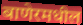
बाणेरमधील